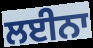
ਲਈਨਾ